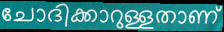
ചോദിക്കാറുള്ളതാണ്